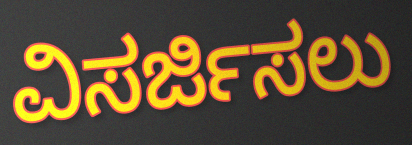
ವಿಸರ್ಜಿಸಲು